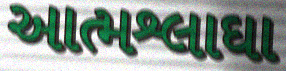
આત્મશ્લાઘા